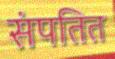
संपतित